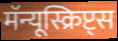
मॅन्यूस्क्रिप्ट्स